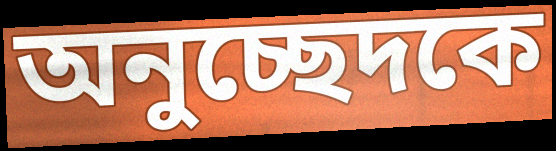
অনুচ্ছেদকে